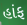
હાંફ